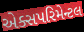
એક્સપરિમેન્ટલ